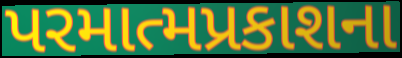
પરમાત્મપ્રકાશના